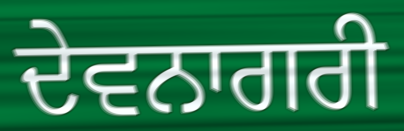
ਦੇਵਨਾਗਰੀ